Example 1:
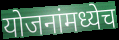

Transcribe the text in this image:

योजनांमध्येच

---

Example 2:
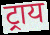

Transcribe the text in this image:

ट्राय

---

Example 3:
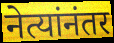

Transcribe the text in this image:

नेत्यांनंतर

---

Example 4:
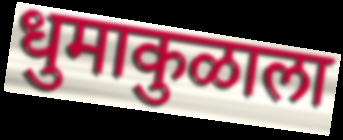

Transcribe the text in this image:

धुमाकुळाला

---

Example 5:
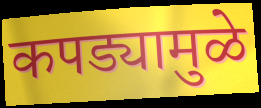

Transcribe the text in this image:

कपड्यामुळे